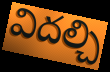
విదల్చి